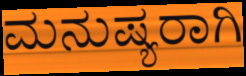
ಮನುಷ್ಯರಾಗಿ